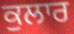
ਕੁਲਾਰ